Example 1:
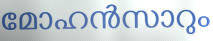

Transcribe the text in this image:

മോഹൻസാറും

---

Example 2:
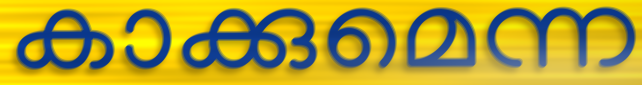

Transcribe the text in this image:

കാക്കുമെന്ന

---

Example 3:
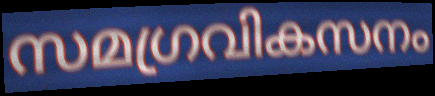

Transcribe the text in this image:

സമഗ്രവികസനം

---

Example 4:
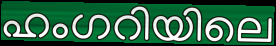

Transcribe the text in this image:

ഹംഗറിയിലെ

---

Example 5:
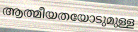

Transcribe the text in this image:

ആത്മീയതയോടുമുള്ള